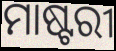
ମାଷ୍ଟରୀ